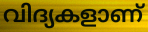
വിദ്യകളാണ്